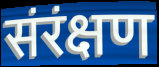
संरंक्षण